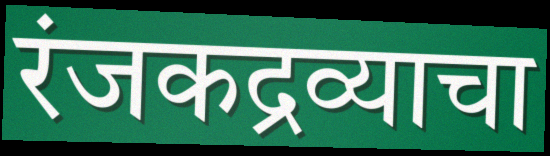
रंजकद्रव्याचा